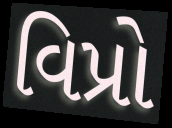
વિપ્રો